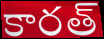
కారత్